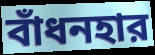
বাঁধনহার